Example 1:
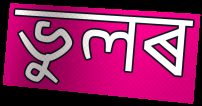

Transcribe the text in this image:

ভুলৰ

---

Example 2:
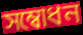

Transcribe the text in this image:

সম্বোধন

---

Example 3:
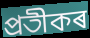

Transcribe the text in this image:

প্ৰতীকৰ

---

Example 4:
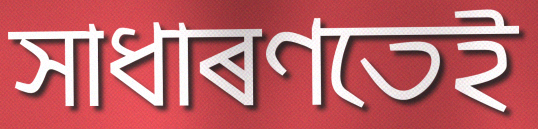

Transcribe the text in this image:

সাধাৰণতেই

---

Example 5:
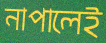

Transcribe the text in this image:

নাপালেই